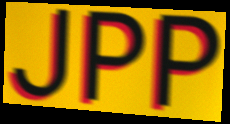
JPP